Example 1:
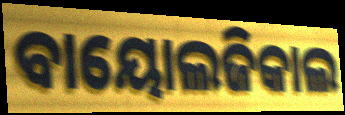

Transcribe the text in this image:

ବାୟୋଲଜିକାଲ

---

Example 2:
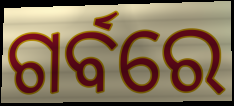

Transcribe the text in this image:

ଗର୍ବରେ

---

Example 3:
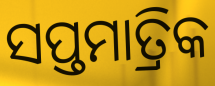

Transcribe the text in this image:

ସପ୍ତମାତ୍ରିକ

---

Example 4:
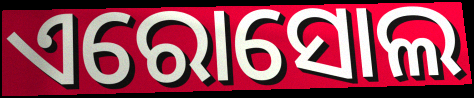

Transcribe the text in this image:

ଏରୋସୋଲ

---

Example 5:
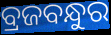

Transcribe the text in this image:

ବ୍ରଜବନ୍ଧୁର